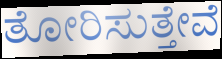
ತೋರಿಸುತ್ತೇವೆ